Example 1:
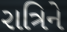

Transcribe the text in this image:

રાત્રિને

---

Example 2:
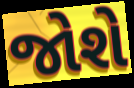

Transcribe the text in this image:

જોશે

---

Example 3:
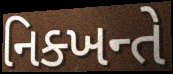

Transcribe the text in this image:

નિક્ખન્તે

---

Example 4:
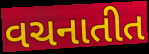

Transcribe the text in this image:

વચનાતીત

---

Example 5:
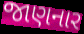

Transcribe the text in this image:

જાણનાર